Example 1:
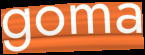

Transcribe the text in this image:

goma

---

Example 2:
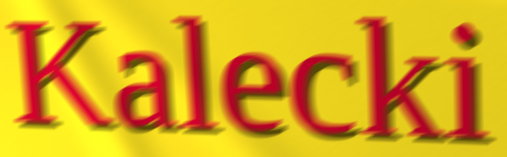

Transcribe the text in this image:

Kalecki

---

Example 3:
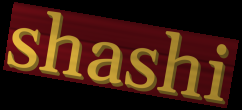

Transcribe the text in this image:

shashi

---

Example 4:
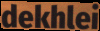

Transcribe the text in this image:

dekhlei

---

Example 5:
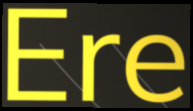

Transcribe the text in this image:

Ere